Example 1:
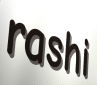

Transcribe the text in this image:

rashi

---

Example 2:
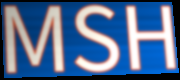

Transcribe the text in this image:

MSH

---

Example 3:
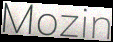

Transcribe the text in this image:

Mozin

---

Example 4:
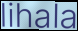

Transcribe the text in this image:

lihala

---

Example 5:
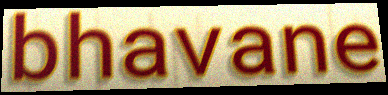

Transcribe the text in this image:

bhavane